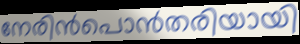
നേരിൻപൊൻതരിയായി